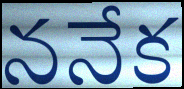
ననేక